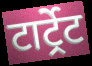
टार्ट्रेट